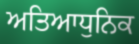
ਅਤਿਆਧੁਨਿਕ